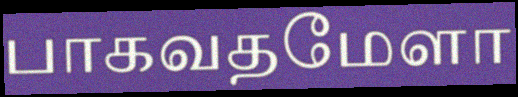
பாகவதமேளா